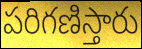
పరిగణిస్తారు